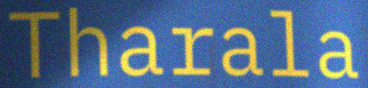
Tharala